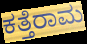
ಕತ್ತೆರಾಮ